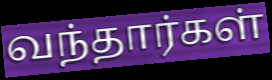
வந்தார்கள்